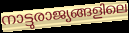
നാട്ടുരാജ്യങ്ങളിലെ